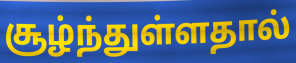
சூழ்ந்துள்ளதால்